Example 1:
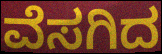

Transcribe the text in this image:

ವೆಸಗಿದ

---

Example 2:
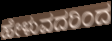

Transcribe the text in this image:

ಹೇಳುವದರಿಂದ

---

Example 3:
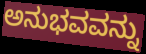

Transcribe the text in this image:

ಅನುಭವವನ್ನು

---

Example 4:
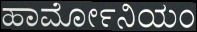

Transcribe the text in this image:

ಹಾರ್ಮೋನಿಯಂ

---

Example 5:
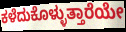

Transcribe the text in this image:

ಕಳೆದುಕೊಳ್ಳುತ್ತಾರೆಯೇ